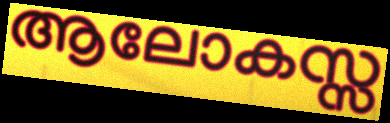
ആലോകസ്സ